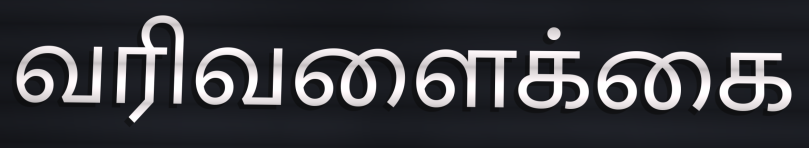
வரிவளைக்கை